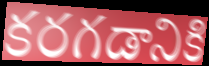
కరగడానికి